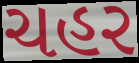
ચહર